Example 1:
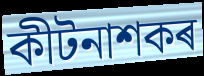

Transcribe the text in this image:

কীটনাশকৰ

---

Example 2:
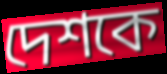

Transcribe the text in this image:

দেশকে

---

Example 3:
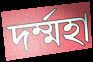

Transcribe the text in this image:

দৰ্ম্মহা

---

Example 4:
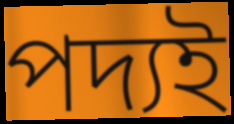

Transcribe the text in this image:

পদ্যই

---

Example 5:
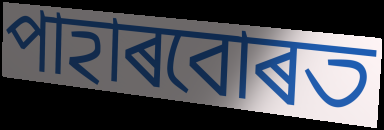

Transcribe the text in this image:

পাহাৰবোৰত